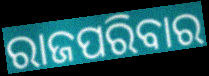
ରାଜପରିବାର